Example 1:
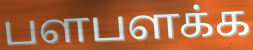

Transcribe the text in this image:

பளபளக்க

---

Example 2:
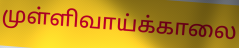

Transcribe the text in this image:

முள்ளிவாய்க்காலை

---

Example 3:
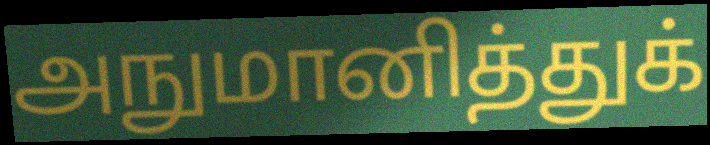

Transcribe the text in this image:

அநுமானித்துக்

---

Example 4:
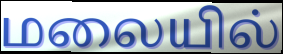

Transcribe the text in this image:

மலையில்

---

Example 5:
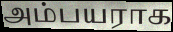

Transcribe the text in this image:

அம்பயராக